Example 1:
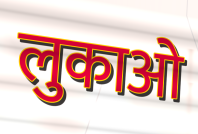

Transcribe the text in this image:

लुकाओ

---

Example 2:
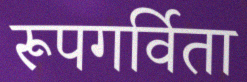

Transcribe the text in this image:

रूपगर्विता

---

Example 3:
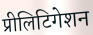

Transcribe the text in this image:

प्रीलिटिगेशन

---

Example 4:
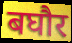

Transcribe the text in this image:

बघौर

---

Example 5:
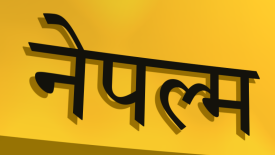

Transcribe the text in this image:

नेपल्म